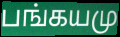
பங்கயமு